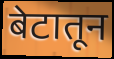
बेटातून